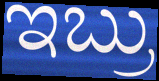
ಇಬ್ರು